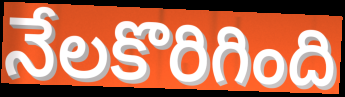
నేలకొరిగింది